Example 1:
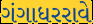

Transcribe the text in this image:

ગંગાધરરાવે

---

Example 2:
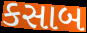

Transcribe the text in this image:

કસાબ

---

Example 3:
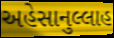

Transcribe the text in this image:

અહેસાનુલ્લાહ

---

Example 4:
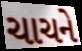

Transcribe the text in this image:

ચાચને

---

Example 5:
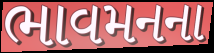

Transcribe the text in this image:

ભાવમનના